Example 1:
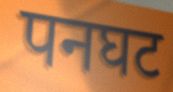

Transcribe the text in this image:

पनघट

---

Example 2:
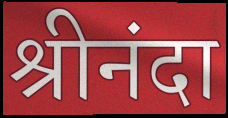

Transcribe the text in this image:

श्रीनंदा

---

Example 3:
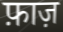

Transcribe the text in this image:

फ़ाज़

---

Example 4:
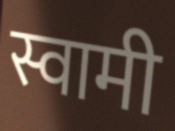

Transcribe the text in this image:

स्‍वामी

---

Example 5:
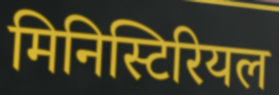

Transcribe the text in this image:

मिनिस्टिरियल